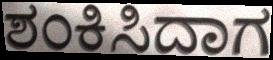
ಶಂಕಿಸಿದಾಗ